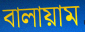
বালায়াম